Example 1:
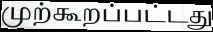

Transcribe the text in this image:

முற்கூறப்பட்டது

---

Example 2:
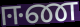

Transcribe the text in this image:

ஈண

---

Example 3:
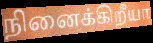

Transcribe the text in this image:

நினைக்கிறீயா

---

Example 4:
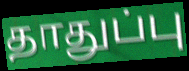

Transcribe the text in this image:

தாதுப்பு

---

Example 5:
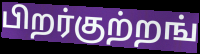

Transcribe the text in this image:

பிறர்குற்றங்